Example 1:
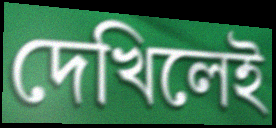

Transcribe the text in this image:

দেখিলেই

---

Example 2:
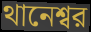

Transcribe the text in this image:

থানেশ্বর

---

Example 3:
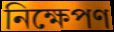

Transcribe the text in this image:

নিক্ষেপণ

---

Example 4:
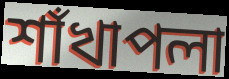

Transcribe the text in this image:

শাঁখাপলা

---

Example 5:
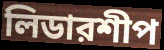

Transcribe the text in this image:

লিডারশীপ